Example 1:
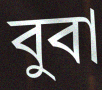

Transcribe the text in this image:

বুবা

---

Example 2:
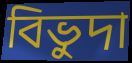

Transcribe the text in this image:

বিভুদা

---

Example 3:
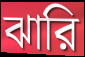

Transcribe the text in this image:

ঝারি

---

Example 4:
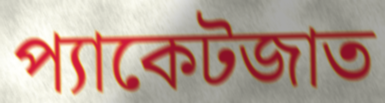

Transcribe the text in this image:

প্যাকেটজাত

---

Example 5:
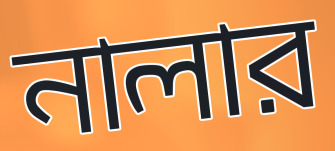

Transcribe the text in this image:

নালার